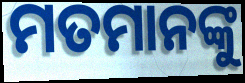
ମତମାନଙ୍କୁ